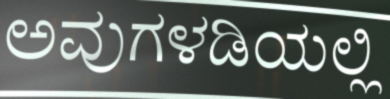
ಅವುಗಳಡಿಯಲ್ಲಿ